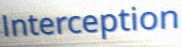
Interception